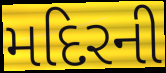
મદિરની